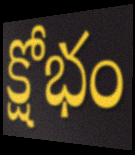
క్షోభం